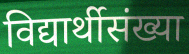
विद्यार्थीसंख्या